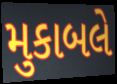
મુકાબલે